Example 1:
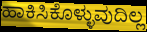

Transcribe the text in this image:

ಹಾಕಿಸಿಕೊಳ್ಳುವುದಿಲ್ಲ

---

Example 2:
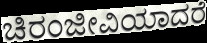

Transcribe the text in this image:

ಚಿರಂಜೀವಿಯಾದರೆ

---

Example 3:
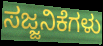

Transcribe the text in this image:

ಸಜ್ಜನಿಕೆಗಳು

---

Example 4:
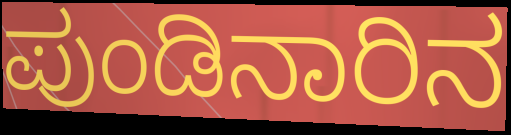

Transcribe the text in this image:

ಪುಂಡಿನಾರಿನ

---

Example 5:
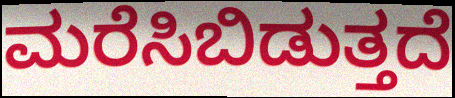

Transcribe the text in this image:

ಮರೆಸಿಬಿಡುತ್ತದೆ